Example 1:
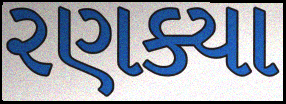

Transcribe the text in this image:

રણક્યા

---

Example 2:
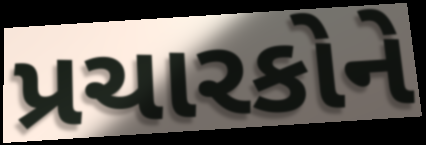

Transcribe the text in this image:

પ્રચારકોને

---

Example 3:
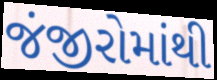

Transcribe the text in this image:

જંજીરોમાંથી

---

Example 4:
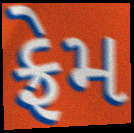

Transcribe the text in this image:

ફ્રેમ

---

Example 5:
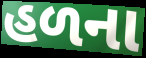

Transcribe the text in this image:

હળના